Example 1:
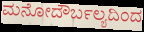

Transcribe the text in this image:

ಮನೋದೌರ್ಬಲ್ಯದಿಂದ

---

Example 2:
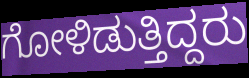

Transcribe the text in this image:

ಗೋಳಿಡುತ್ತಿದ್ದರು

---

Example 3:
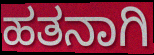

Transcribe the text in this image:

ಹತನಾಗಿ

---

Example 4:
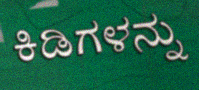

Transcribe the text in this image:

ಕಿಡಿಗಳನ್ನು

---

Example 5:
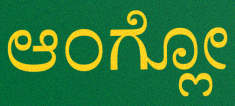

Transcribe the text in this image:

ಆಂಗ್ಲೋ